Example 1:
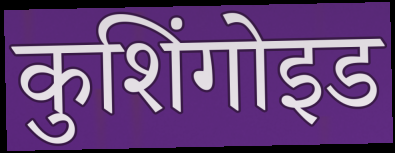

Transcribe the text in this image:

कुशिंगोइड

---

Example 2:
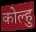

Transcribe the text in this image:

कोल्हु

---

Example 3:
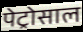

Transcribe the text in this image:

पेट्रोसाल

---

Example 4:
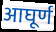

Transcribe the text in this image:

आघूर्ण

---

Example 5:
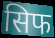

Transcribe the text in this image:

सिफ